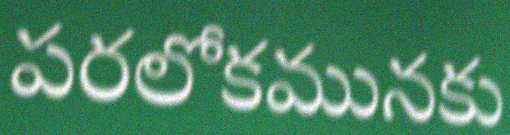
పరలోకమునకు